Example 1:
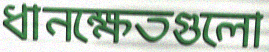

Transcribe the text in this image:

ধানক্ষেতগুলো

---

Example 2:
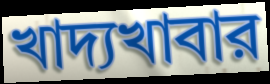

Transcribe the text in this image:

খাদ্যখাবার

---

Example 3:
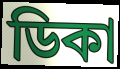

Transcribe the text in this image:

ডিকা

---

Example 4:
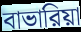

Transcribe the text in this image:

বাভারিয়া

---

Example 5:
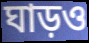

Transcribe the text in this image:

ঘাড়ও